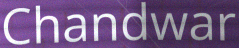
Chandwar